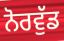
ਨੋਰਵੁੱਡ